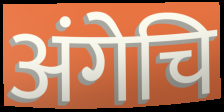
अंगेचि